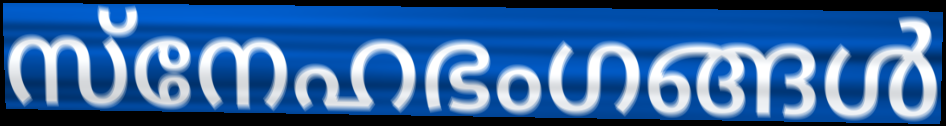
സ്നേഹഭംഗങ്ങൾ